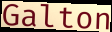
Galton